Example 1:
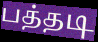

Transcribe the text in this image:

பத்தடி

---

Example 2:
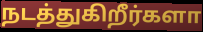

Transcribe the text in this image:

நடத்துகிறீர்களா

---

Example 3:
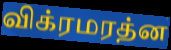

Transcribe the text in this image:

விக்ரமரத்ன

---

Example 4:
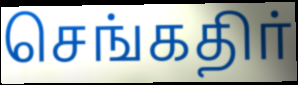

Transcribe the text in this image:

செங்கதிர்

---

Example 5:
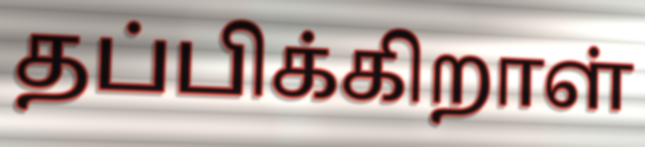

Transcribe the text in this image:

தப்பிக்கிறாள்